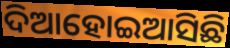
ଦିଆହୋଇଆସିଛି